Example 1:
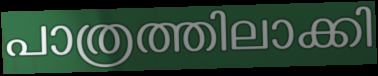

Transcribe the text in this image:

പാത്രത്തിലാക്കി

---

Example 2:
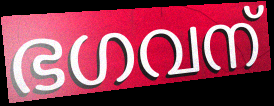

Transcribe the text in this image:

ഭഗവന്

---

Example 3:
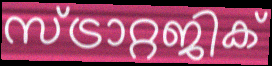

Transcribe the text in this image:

സ്ട്രാറ്റജിക്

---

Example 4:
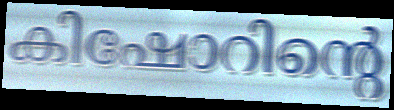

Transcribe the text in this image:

കിഷോറിന്റെ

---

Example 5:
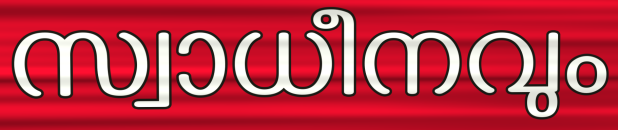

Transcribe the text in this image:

സ്വാധീനവും